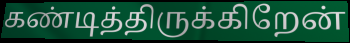
கண்டித்திருக்கிறேன்